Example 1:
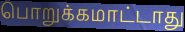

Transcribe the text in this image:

பொறுக்கமாட்டாது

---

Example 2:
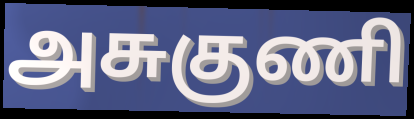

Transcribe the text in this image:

அசுகுணி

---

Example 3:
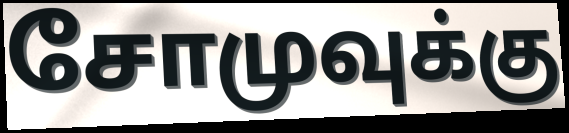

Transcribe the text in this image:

சோமுவுக்கு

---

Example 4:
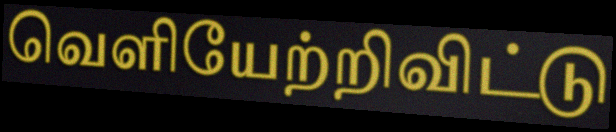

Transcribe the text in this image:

வெளியேற்றிவிட்டு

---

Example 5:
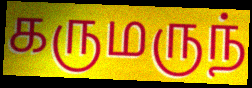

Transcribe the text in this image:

கருமருந்